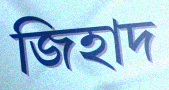
জিহাদ